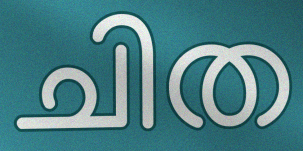
ചിത